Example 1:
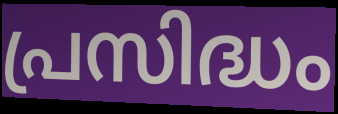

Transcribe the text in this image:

പ്രസിദ്ധം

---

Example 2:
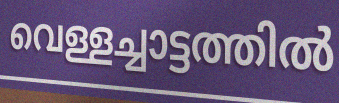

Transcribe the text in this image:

വെള്ളച്ചാട്ടത്തിൽ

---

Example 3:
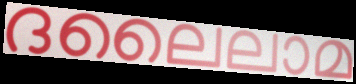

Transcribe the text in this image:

ദലൈലാമ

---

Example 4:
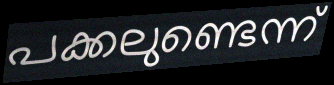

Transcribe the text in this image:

പക്കലുണ്ടെന്ന്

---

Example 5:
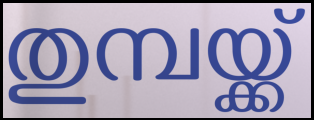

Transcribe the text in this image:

തുമ്പയ്ക്ക്